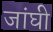
जांघी